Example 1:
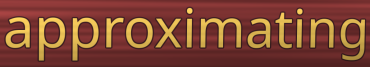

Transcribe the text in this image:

approximating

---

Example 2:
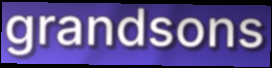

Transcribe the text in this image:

grandsons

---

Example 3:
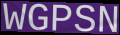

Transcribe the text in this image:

WGPSN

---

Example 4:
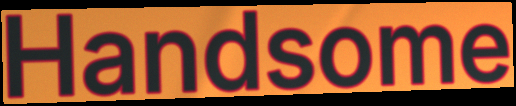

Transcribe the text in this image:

Handsome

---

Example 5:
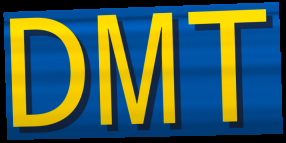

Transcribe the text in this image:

DMT